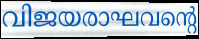
വിജയരാഘവന്റെ